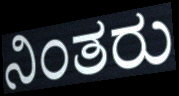
ನಿಂತರು